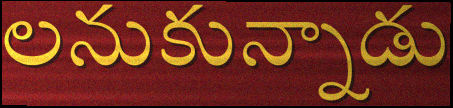
లనుకున్నాడు